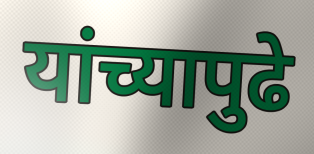
यांच्यापुढे